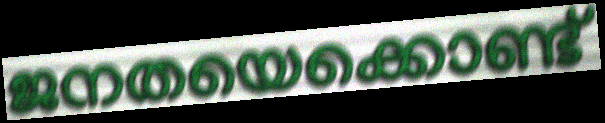
ജനതയെക്കൊണ്ട്